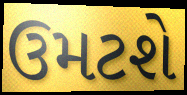
ઉમટશે